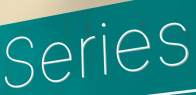
Series